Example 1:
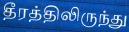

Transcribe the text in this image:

தீரத்திலிருந்து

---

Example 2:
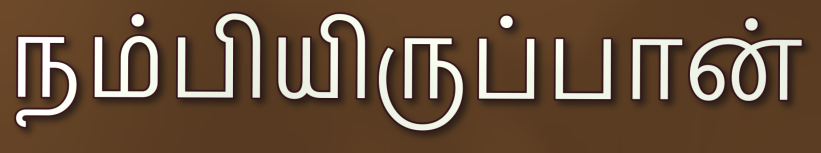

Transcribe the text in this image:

நம்பியிருப்பான்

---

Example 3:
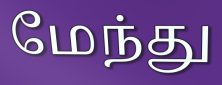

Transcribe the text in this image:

மேந்து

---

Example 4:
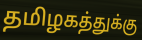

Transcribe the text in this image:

தமிழகத்துக்கு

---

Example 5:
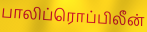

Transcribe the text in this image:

பாலிப்ரொப்பிலீன்